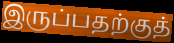
இருப்பதற்குத்